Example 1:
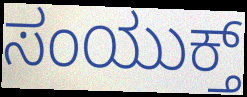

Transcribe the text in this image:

ಸಂಯುಕ್ತ್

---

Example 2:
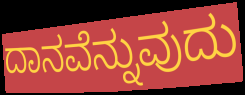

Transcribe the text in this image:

ದಾನವೆನ್ನುವುದು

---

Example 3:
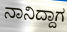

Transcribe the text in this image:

ನಾನಿದ್ದಾಗ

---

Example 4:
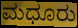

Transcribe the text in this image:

ಮಧೂರು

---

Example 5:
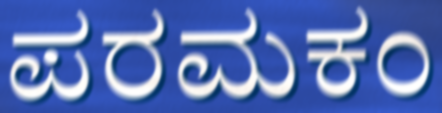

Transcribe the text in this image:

ಪರಮಕಂ